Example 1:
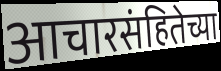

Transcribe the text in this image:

आचारसंहितेच्या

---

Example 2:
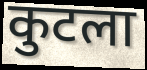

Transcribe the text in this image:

कुटला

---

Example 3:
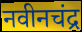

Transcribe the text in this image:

नवीनचंद्र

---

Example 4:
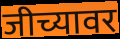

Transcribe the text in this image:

जीच्यावर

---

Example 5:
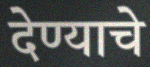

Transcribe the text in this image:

देण्याचे